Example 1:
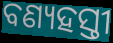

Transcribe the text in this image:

ବଣ୍ୟହସ୍ତୀ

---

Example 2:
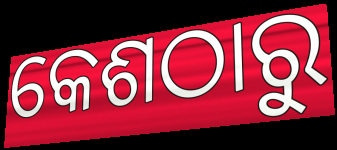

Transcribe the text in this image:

କେଶଠାରୁ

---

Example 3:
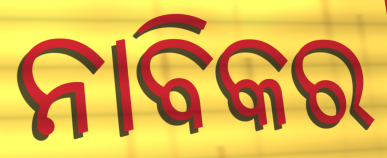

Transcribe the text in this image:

ନାବିକର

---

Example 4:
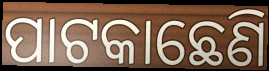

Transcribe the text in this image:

ପାଟକାଛେଣି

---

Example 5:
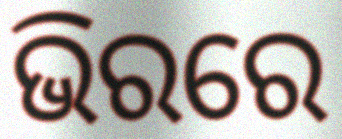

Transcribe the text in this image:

ଭିରରେ